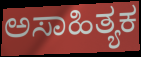
ಅಸಾಹಿತ್ಯಕ